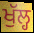
ਖੁੱਲ੍ਹ